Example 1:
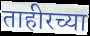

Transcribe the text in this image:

ताहीरच्या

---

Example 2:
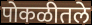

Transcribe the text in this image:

पोकळीतले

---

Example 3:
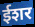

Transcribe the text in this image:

ईशर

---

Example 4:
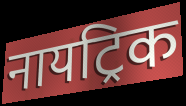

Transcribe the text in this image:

नायट्रिक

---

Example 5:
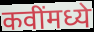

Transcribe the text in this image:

कवींमध्ये